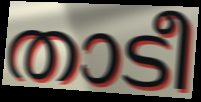
താടീ